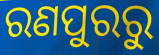
ରଣପୁରରୁ